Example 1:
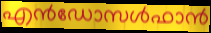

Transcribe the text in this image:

എൻഡോസൾഫാൻ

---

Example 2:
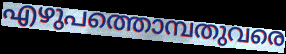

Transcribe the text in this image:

എഴുപത്തൊമ്പതുവരെ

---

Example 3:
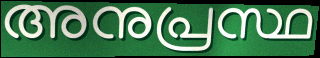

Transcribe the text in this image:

അനുപ്രസ്ഥ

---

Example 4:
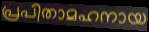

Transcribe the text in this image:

പ്രപിതാമഹനായ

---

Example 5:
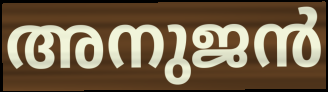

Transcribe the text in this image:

അനുജൻ